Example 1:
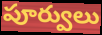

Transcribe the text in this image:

పూర్వులు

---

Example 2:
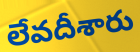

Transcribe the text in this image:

లేవదీశారు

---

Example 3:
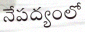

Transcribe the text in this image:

నేపద్యంలో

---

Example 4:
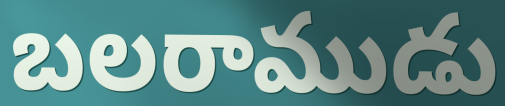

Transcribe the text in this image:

బలరాముడు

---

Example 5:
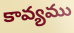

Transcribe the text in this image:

కావ్యము